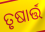
ତୃଷାର୍ତ୍ତ